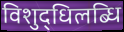
विशुद्धिलब्धि